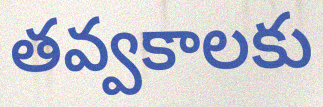
తవ్వకాలకు